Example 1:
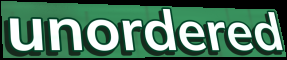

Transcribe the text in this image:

unordered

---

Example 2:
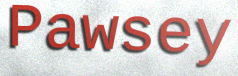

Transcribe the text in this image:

Pawsey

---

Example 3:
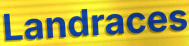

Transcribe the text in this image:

Landraces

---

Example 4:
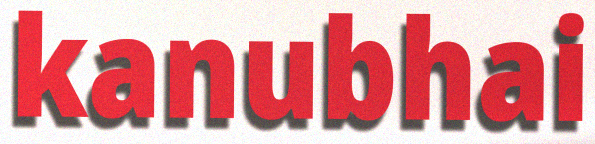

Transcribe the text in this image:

kanubhai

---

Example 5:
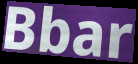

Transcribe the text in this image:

Bbar